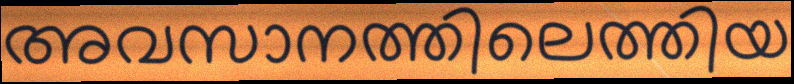
അവസാനത്തിലെത്തിയ